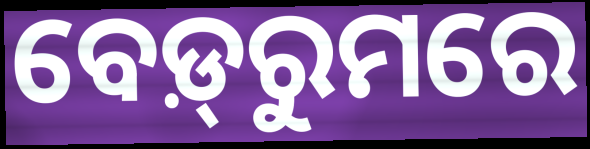
ବେଡ଼୍‌ରୁମରେ